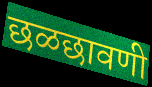
छळछावणी